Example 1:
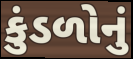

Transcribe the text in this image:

કુંડળોનું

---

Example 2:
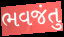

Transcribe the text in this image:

ભવજંતુ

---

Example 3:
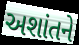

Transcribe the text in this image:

અશાંતને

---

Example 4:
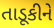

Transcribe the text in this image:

તાડૂકીને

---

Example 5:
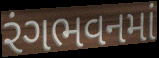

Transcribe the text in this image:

રંગભવનમાં